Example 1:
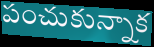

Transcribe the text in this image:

పంచుకున్నాక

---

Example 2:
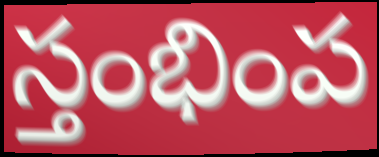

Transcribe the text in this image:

స్తంభింప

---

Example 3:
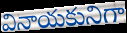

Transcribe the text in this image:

వినాయకునిగా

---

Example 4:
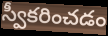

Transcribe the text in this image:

స్వీకరించడం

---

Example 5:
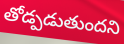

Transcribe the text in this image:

తోడ్పడుతుందని